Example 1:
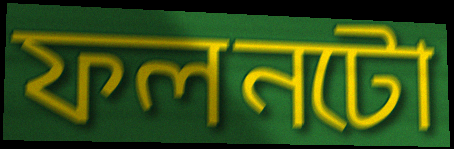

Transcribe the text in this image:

ফলনটো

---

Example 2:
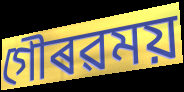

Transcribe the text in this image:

গৌৰৱময়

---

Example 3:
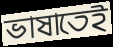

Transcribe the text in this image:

ভাষাতেই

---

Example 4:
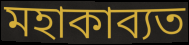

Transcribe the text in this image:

মহাকাব্যত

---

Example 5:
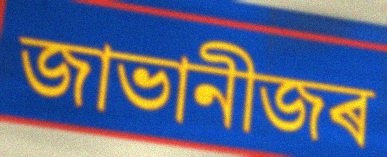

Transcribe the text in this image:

জাভানীজৰ